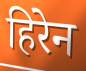
हिरेन